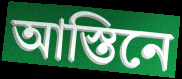
আস্তিনে